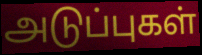
அடுப்புகள்